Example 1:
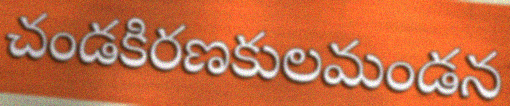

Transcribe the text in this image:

చండకిరణకులమండన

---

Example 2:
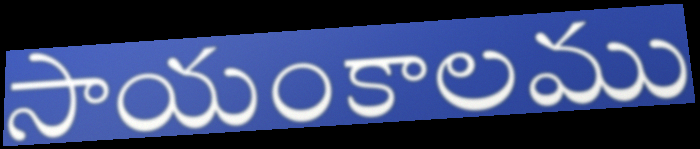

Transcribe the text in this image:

సాయంకాలము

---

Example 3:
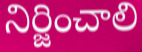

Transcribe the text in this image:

నిర్జించాలి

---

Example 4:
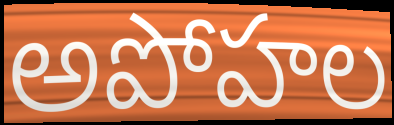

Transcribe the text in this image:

అపోహల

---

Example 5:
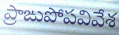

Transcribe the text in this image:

ప్రాఙుపోపవివేశ